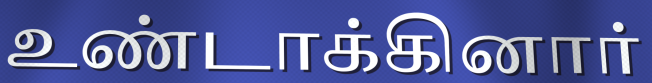
உண்டாக்கினார்